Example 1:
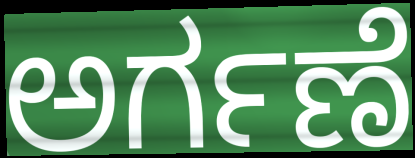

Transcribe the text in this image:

ಅರ್ಗಣೆ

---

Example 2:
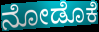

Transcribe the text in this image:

ನೋಡೊಕೆ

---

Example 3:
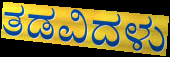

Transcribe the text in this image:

ತಡವಿದಳು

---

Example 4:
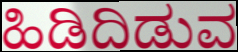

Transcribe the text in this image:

ಹಿಡಿದಿಡುವ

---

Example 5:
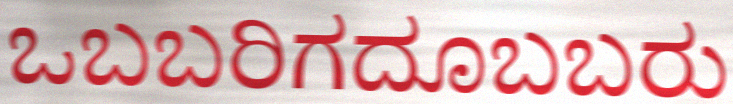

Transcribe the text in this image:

ಒಬಬರಿಗದೂಬಬರು